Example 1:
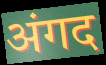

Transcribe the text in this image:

अंगद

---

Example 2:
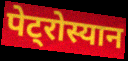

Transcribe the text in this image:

पेट्रोस्यान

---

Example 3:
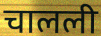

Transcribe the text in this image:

चालली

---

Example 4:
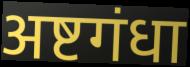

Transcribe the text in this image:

अष्टगंधा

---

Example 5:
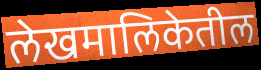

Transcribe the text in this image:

लेखमालिकेतील